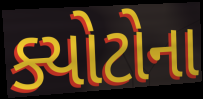
ક્યોટોના